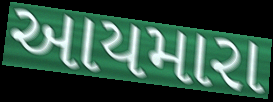
આયમારા